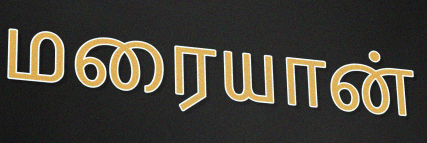
மரையான்